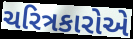
ચરિત્રકારોએ